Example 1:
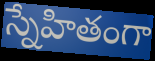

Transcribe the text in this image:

స్నేహితంగా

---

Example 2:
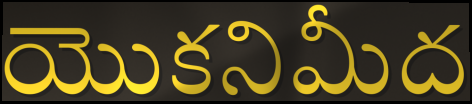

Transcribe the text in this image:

యొకనిమీద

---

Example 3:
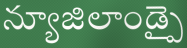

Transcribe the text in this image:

న్యూజిలాండ్పై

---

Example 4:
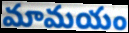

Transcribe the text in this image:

మామయం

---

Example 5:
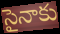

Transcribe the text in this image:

సైనాకు